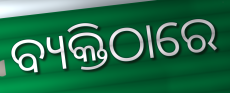
ବ୍ୟକ୍ତିଠାରେ